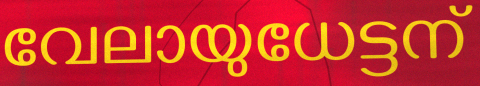
വേലായുധേട്ടന്